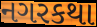
નગરકથા